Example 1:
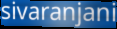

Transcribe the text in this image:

sivaranjani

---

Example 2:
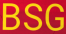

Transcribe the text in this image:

BSG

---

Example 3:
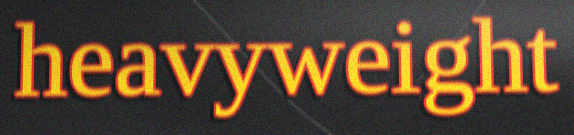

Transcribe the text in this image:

heavyweight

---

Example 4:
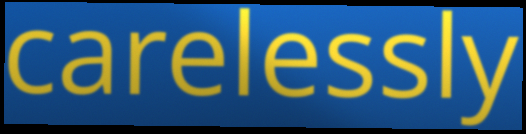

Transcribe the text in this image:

carelessly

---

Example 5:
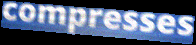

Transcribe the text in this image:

compresses